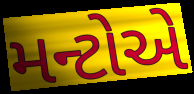
મન્ટોએ